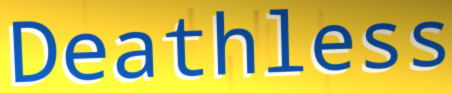
Deathless